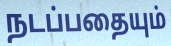
நடப்பதையும்